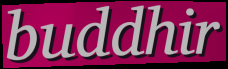
buddhir